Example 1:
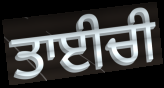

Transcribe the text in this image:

ਤਾਈਚੀ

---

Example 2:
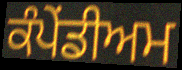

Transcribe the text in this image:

ਕੰਪੇਂਡੀਅਮ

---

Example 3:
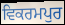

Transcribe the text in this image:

ਵਿਕਰਮਪੁਰ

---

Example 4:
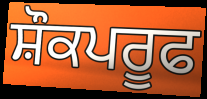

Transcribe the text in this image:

ਸ਼ੌਕਪਰੂਫ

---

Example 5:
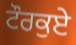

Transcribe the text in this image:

ਟੌਰਕੁਏ